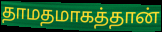
தாமதமாகத்தான்